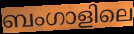
ബംഗാളിലെ